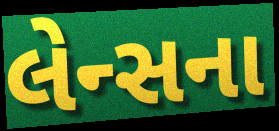
લેન્સના